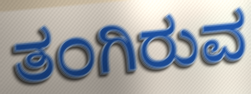
ತಂಗಿರುವ